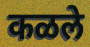
कळले